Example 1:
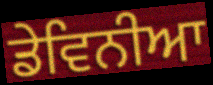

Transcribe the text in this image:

ਡੇਵਿਨੀਆ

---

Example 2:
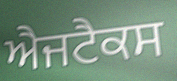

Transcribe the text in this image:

ਐਜਟੈਕਸ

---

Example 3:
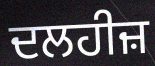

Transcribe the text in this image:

ਦਲਹੀਜ਼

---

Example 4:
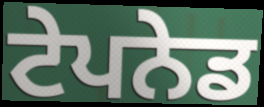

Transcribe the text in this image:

ਟੇਪਨੇਡ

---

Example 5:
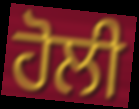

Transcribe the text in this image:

ਹੋਲੀ